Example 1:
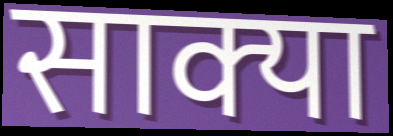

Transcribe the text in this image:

साक्या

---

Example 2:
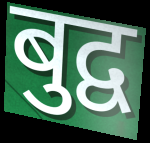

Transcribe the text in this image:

बुद्व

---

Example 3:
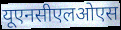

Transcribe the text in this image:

यूएनसीएलओएस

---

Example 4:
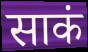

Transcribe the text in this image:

साकं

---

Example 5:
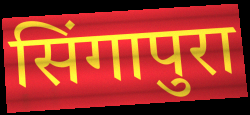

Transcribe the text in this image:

सिंगापुरा